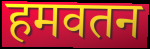
हमवतन